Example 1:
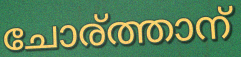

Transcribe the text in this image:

ചോര്ത്താന്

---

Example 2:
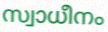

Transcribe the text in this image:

സ്വാധീനം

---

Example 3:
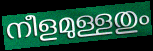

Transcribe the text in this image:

നീളമുള്ളതും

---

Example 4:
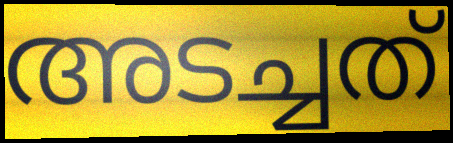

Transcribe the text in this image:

അടച്ചത്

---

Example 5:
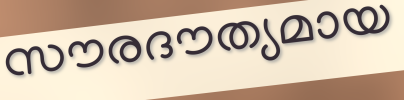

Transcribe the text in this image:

സൗരദൗത്യമായ